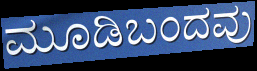
ಮೂಡಿಬಂದವು